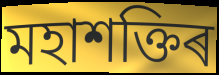
মহাশক্তিৰ